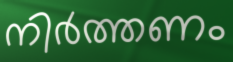
നിർത്തണം